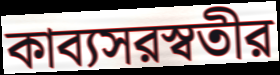
কাব্যসরস্বতীর